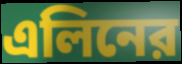
এলিনের